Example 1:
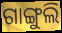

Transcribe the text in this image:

ଗାଙ୍ଗୁଲି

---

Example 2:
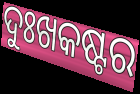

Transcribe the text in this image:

ଦୁଃଖକଷ୍ଟର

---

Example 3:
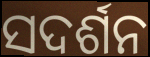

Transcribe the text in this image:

ସଦର୍ଶନ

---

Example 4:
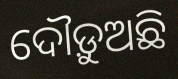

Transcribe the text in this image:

ଦୌଡ଼ୁଅଛି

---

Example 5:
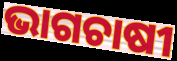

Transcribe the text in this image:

ଭାଗଚାଷୀ